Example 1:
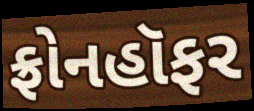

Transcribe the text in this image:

ફ્રોનહૉફર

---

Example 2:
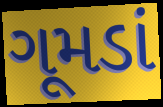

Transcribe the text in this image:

ગૂમડાં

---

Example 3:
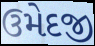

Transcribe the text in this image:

ઉમેદજી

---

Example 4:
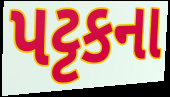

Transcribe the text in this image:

પટ્ટકના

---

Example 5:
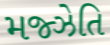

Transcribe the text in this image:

મજ્ઝેતિ